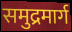
समुद्रमार्ग